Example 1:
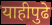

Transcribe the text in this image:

याहीपुढे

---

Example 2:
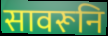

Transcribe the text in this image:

सावरूनि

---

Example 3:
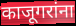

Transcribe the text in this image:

काजूगरांना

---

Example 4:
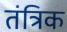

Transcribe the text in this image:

तंत्रिक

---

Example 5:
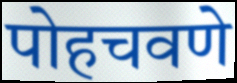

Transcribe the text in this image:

पोहचवणे